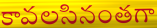
కావలసినంతగా